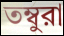
তম্বুরা